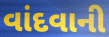
વાંદવાની